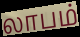
லாபம்